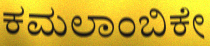
ಕಮಲಾಂಬಿಕೇ